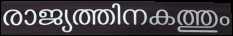
രാജ്യത്തിനകത്തും